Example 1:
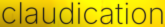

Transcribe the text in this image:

claudication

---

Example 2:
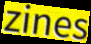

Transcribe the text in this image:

zines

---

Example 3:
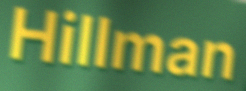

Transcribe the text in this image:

Hillman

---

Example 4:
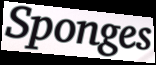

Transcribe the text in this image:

Sponges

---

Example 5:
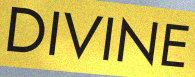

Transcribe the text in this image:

DIVINE